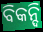
ବିକନ୍ଦି